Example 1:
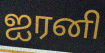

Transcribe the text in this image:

ஐரனி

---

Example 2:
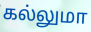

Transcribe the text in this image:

கல்லுமா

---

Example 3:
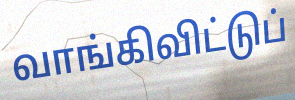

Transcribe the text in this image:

வாங்கிவிட்டுப்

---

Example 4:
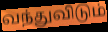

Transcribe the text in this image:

வந்துவிடும்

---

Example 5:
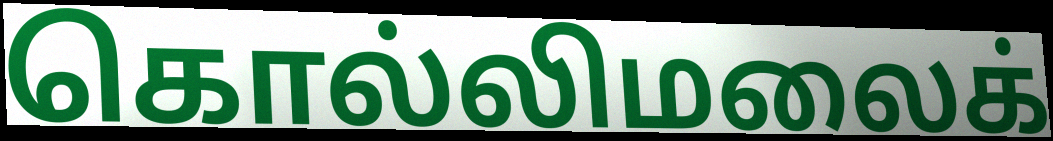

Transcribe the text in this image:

கொல்லிமலைக்